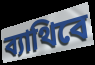
ব্যাথিবে